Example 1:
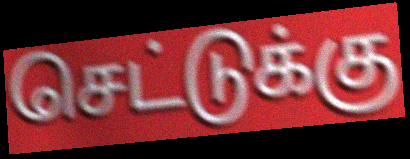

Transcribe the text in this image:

செட்டுக்கு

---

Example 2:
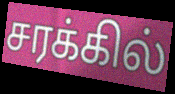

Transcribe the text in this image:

சரக்கில்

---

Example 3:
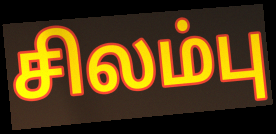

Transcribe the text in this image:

சிலம்பு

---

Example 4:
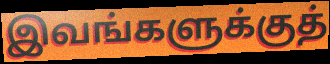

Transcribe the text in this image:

இவங்களுக்குத்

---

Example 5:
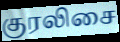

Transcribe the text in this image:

குரலிசை